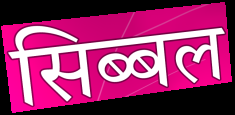
सिब्बल